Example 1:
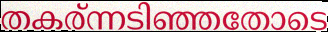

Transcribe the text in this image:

തകര്ന്നടിഞ്ഞതോടെ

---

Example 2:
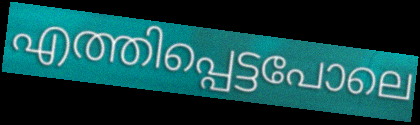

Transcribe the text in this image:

എത്തിപ്പെട്ടപോലെ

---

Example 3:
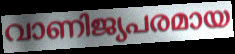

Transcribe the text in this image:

വാണിജ്യപരമായ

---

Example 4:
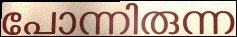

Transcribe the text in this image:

പോന്നിരുന്ന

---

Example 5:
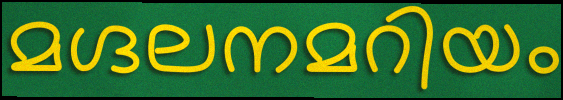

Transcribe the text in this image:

മഗ്ദലനമറിയം